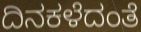
ದಿನಕಳೆದಂತೆ